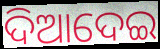
ଦିଆଦେଇ